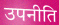
उपनीति